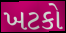
ખટકો